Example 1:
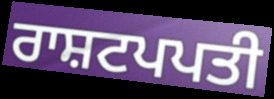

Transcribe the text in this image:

ਰਾਸ਼ਟਪਪਤੀ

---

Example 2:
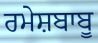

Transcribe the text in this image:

ਰਮੇਸ਼ਬਾਬੂ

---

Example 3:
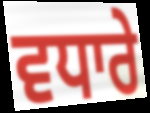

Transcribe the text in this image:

ਵਧਾਰੇ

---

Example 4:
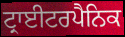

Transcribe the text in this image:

ਟ੍ਰਾਈਟਰਪੈਨਿਕ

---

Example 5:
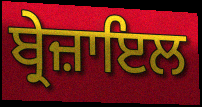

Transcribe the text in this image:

ਬ੍ਰੇਜ਼ਾਇਲ